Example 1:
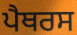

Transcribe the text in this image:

ਪੈਥਰਸ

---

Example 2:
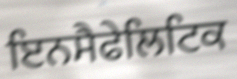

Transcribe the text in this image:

ਇਨਸੈਫੇਲਿਟਿਕ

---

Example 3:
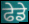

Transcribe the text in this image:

ਫੇਡੇ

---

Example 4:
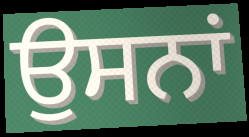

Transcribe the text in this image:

ਉਸਨਾਂ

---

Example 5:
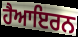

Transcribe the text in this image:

ਹੈਆਇਰਨ